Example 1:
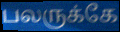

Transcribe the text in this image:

பலருக்கே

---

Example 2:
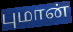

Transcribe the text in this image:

புமான்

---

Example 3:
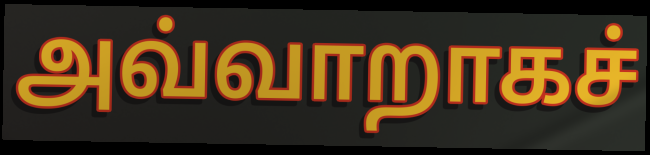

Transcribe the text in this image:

அவ்வாறாகச்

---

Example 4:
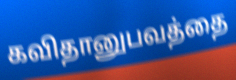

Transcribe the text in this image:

கவிதானுபவத்தை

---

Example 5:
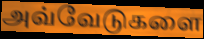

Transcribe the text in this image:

அவ்வேடுகளை